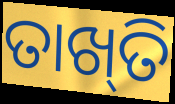
ତାଖ୍‍ତି